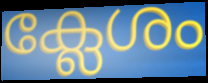
ക്ലേശം